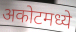
अकोटमध्ये